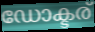
ഡോക്ടര്